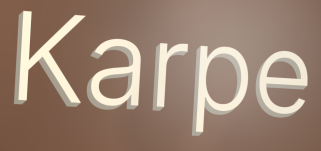
Karpe